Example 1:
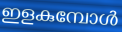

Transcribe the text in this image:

ഇളകുമ്പോൾ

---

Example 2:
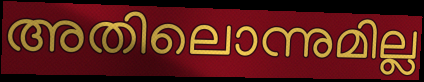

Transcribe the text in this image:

അതിലൊന്നുമില്ല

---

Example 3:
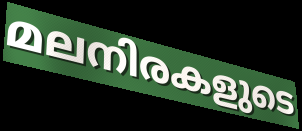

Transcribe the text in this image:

മലനിരകളുടെ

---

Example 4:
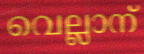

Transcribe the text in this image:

വെല്ലാന്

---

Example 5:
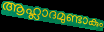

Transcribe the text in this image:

ആഹ്ലാദമുണ്ടാകും